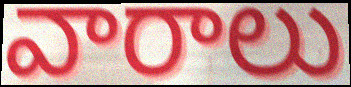
వారాలు